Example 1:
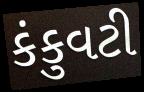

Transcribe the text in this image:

કંકુવટી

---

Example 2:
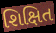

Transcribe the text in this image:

શિક્ષિત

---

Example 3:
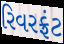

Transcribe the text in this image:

રિવરફ્રંટ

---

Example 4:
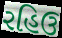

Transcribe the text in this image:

રહિઉ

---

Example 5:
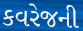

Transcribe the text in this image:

કવરેજની